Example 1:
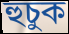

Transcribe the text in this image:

হুচুক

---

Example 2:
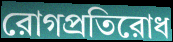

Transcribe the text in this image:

রোগপ্রতিরোধ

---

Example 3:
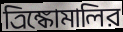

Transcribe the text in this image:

ত্রিঙ্কোমালির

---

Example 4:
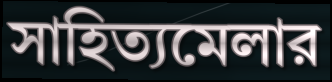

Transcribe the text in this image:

সাহিত্যমেলার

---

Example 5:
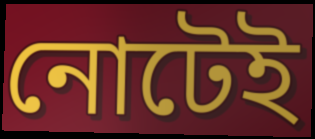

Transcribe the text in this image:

নোটেই